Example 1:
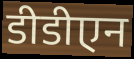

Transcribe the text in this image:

डीडीएन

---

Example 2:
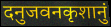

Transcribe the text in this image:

दनुजवनकृशानुं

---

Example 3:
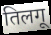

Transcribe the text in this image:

तिलगू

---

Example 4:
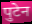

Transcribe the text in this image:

पुटेन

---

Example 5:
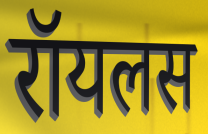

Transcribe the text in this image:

रॉयलस